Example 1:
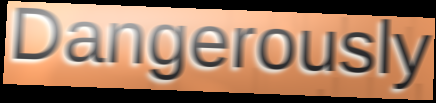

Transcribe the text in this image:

Dangerously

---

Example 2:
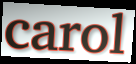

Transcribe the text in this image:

carol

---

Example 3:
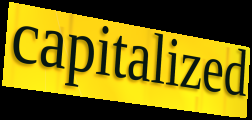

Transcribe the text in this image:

capitalized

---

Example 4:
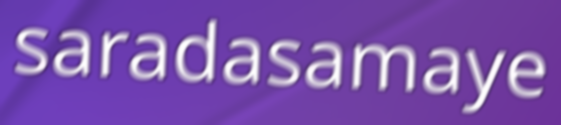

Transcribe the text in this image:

saradasamaye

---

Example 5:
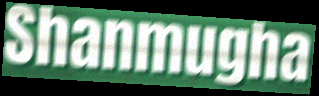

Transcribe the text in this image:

Shanmugha